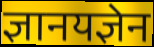
ज्ञानयज्ञेन